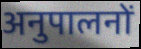
अनुपालनों